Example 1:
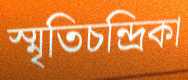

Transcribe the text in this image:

স্মৃতিচন্দ্রিকা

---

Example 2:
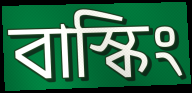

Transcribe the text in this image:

বাস্কিং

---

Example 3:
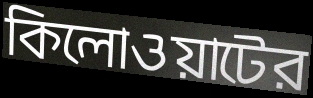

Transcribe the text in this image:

কিলোওয়াটের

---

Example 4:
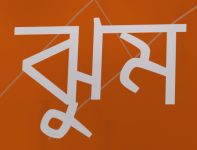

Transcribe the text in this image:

ঝুম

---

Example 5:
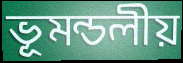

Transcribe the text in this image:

ভূমন্ডলীয়